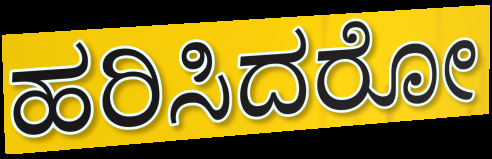
ಹರಿಸಿದರೋ